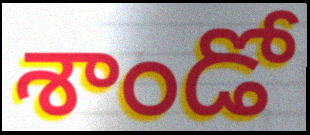
శాండో